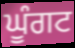
ਘੂੰਗਟ